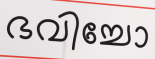
ഭവിച്ചോ